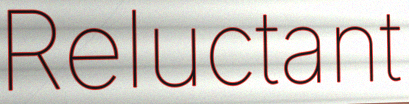
Reluctant